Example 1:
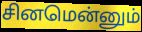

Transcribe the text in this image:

சினமென்னும்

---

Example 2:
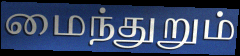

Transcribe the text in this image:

மைந்துறும்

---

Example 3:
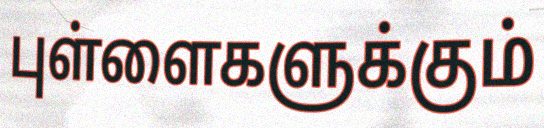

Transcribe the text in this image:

புள்ளைகளுக்கும்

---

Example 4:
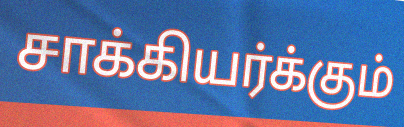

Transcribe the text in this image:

சாக்கியர்க்கும்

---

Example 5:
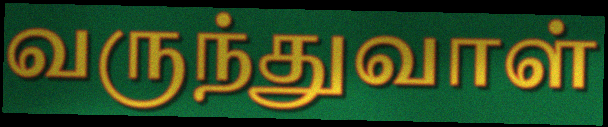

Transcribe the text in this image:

வருந்துவாள்